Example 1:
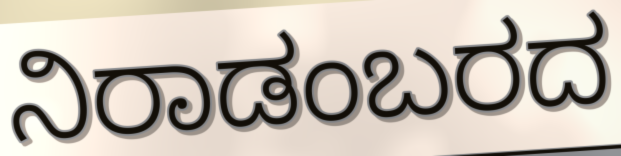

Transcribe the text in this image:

ನಿರಾಡಂಬರದ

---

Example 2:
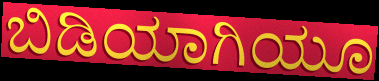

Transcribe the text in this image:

ಬಿಡಿಯಾಗಿಯೂ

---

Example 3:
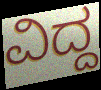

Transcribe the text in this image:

ವಿದ್ದ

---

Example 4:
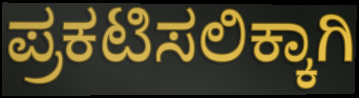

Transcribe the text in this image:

ಪ್ರಕಟಿಸಲಿಕ್ಕಾಗಿ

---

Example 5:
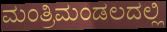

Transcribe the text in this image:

ಮಂತ್ರಿಮಂಡಲದಲ್ಲಿ